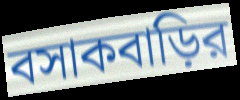
বসাকবাড়ির